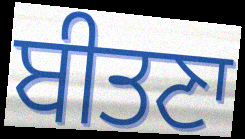
ਬੀਤਣਾ